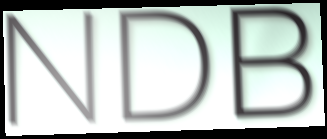
NDB